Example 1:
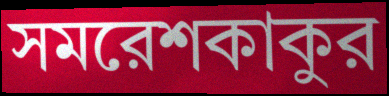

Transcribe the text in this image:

সমরেশকাকুর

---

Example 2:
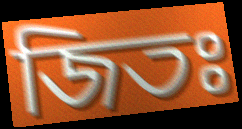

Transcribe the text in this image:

জিতঃ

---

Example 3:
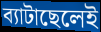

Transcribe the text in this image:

ব্যাটাছেলেই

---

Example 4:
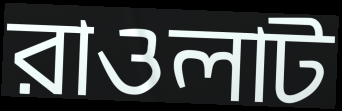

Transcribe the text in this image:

রাওলাট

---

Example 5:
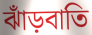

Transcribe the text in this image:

ঝাঁড়বাতি